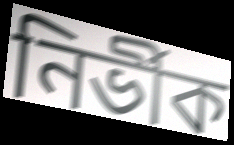
নিৰ্ভীক